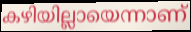
കഴിയില്ലായെന്നാണ്